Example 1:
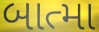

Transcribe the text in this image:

બાત્મા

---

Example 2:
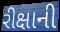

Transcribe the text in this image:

રીક્ષાની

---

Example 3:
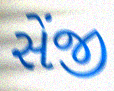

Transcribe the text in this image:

સેંજી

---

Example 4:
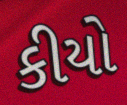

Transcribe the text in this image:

કીયો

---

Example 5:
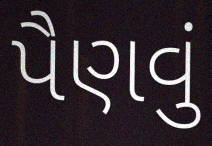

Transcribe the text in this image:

પૈણવું